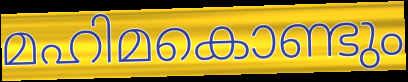
മഹിമകൊണ്ടും